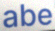
abe